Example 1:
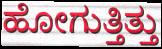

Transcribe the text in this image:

ಹೋಗುತ್ತಿತ್ತು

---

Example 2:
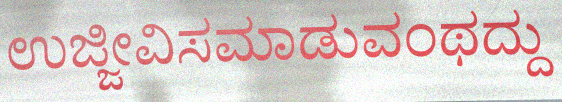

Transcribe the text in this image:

ಉಜ್ಜೀವಿಸಮಾಡುವಂಥದ್ದು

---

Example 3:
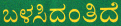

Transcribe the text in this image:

ಬಳಸಿದಂತಿದೆ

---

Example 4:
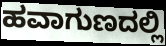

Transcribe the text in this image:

ಹವಾಗುಣದಲ್ಲಿ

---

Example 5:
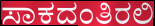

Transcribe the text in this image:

ಸಾಕದಂತಿರಲಿ